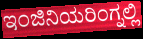
ಇಂಜಿನಿಯರಿಂಗ್ನಲ್ಲಿ